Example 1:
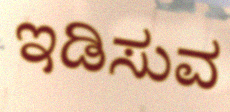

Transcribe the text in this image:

ಇಡಿಸುವ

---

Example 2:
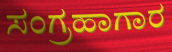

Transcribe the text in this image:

ಸಂಗ್ರಹಾಗಾರ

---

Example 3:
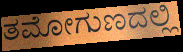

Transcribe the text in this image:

ತಮೋಗುಣದಲ್ಲಿ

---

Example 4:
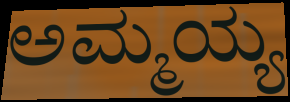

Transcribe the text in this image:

ಅಮ್ಮಯ್ಯ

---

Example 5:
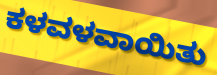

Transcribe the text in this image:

ಕಳವಳವಾಯಿತು